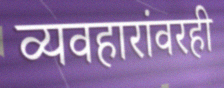
व्यवहारांवरही